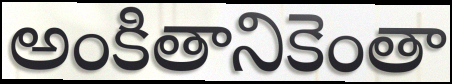
అంకితానికెంతా